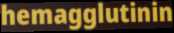
hemagglutinin